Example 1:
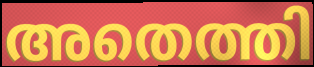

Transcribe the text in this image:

അതെത്തി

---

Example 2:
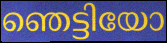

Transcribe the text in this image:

ഞെട്ടിയോ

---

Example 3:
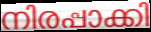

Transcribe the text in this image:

നിരപ്പാക്കി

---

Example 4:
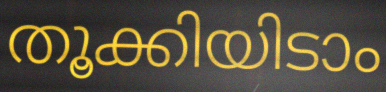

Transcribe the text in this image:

തൂക്കിയിടാം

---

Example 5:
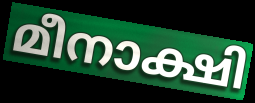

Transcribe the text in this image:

മീനാക്ഷി